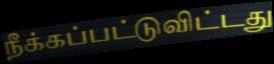
நீக்கப்பட்டுவிட்டது